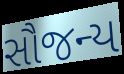
સૌજન્ય